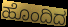
ಹೊಂದಿದ